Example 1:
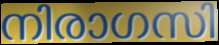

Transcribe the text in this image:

നിരാഗസി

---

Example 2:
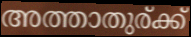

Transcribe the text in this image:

അത്താതുര്ക്ക്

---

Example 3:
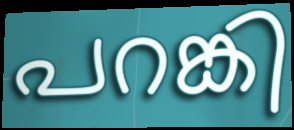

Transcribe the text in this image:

പറങ്കി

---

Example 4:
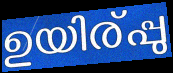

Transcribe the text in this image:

ഉയിര്പ്പു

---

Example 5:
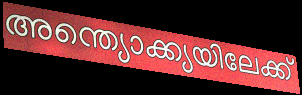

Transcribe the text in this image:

അന്ത്യൊക്ക്യയിലേക്ക്